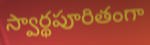
స్వార్థపూరితంగా